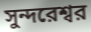
সুন্দরেশ্বর